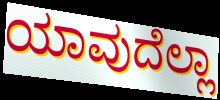
ಯಾವುದೆಲ್ಲಾ